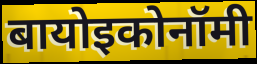
बायोइकोनॉमी